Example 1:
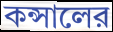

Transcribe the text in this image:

কন্সালের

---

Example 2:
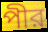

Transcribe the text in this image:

পীর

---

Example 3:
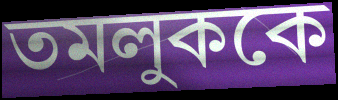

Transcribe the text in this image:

তমলুককে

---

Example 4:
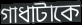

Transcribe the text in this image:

গাধাটাকে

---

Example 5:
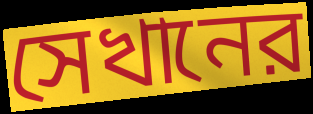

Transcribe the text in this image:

সেখানের